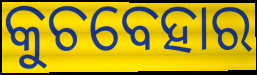
କୁଚବେହାର